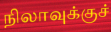
நிலாவுக்குச்